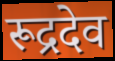
रूद्रदेव